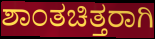
ಶಾಂತಚಿತ್ತರಾಗಿ